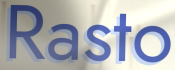
Rasto